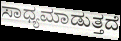
ಸಾಧ್ಯಮಾಡುತ್ತದೆ